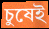
চুষেই